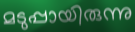
മടുപ്പായിരുന്നു